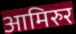
आमिरुर